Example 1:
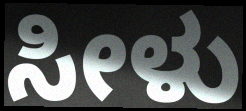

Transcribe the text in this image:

ಸೀಳು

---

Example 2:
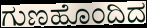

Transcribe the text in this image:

ಗುಣಹೊಂದಿದ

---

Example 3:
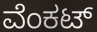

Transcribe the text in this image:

ವೆಂಕಟ್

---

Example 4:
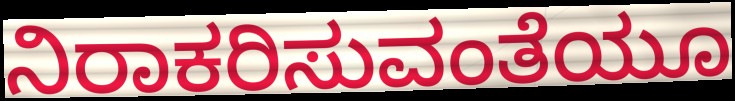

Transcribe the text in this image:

ನಿರಾಕರಿಸುವಂತೆಯೂ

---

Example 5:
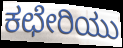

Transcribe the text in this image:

ಕಛೇರಿಯು